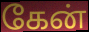
கேன்